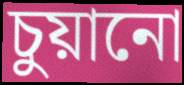
চুয়ানো